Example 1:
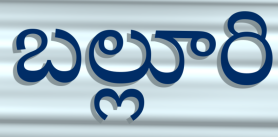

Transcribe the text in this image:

బల్లూరి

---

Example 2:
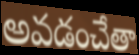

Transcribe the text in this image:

అవడంచేతా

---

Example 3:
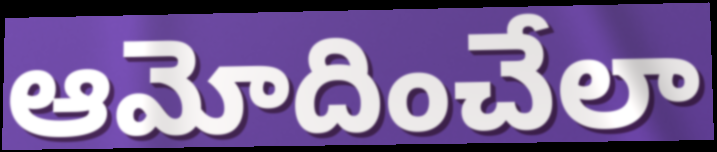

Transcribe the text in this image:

ఆమోదించేలా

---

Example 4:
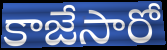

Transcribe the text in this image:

కాజేసారో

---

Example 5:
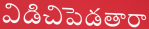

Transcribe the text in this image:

విడిచిపెడతారా